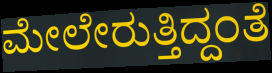
ಮೇಲೇರುತ್ತಿದ್ದಂತೆ